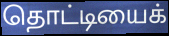
தொட்டியைக்